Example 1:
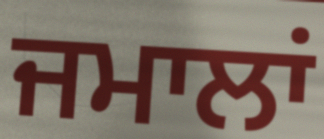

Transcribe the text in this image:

ਜਮਾਲਾਂ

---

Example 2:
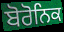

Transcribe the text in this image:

ਬੋਰੋਨਿਕ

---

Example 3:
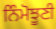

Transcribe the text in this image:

ਨਿੰਮੋਝੂਣੀ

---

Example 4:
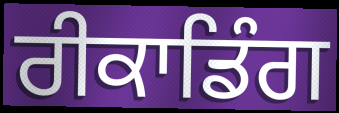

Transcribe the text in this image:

ਰੀਕਾਡਿੰਗ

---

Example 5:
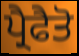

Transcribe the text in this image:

ਪ੍ਰੈਫੈਤੋ